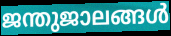
ജന്തുജാലങ്ങൾ